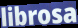
librosa